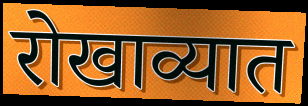
रोखाव्यात